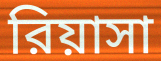
রিয়াসা